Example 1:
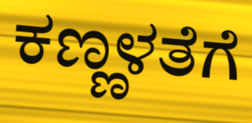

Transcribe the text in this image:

ಕಣ್ಣಳತೆಗೆ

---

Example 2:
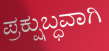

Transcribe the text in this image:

ಪ್ರಕ್ಷುಬ್ಧವಾಗಿ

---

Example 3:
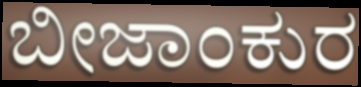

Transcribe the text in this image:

ಬೀಜಾಂಕುರ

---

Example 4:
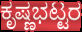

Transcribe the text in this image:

ಕೃಷ್ಣಭಟ್ಟರ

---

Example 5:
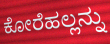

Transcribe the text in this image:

ಕೋರೆಹಲ್ಲನ್ನು